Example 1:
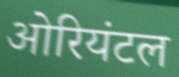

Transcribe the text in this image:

ओरियंटल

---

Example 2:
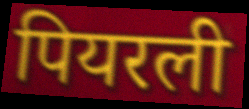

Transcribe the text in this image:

पियरली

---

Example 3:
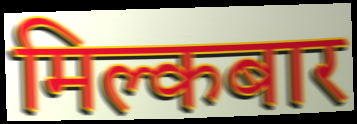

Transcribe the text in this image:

मिल्कबार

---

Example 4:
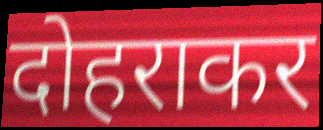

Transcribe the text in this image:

दोहराकर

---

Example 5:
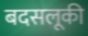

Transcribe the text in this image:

बदसलूकी